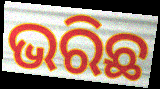
ଭରିଛ